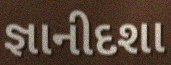
જ્ઞાનીદશા